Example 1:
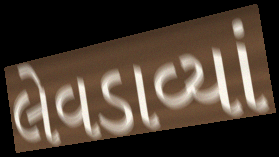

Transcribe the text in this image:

લેવડાવ્યાં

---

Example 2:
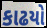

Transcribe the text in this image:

કાઢયો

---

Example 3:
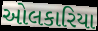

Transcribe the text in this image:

ઓલકારિયા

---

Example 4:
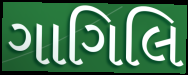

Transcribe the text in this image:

ગાગિલિ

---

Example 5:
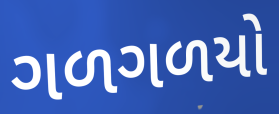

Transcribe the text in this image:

ગળગળયો